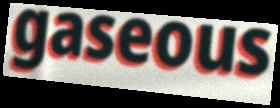
gaseous